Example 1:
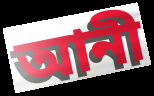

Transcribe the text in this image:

আনী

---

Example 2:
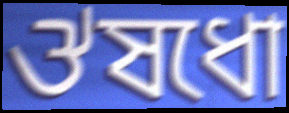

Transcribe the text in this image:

ঔষধো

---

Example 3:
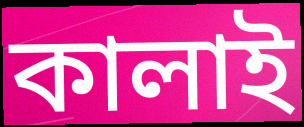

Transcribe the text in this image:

কালাই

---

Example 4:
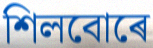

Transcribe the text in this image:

শিলবোৰে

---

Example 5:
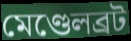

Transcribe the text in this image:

মেণ্ডেলব্ৰট